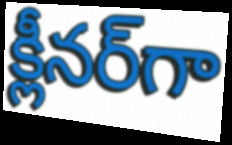
క్లీనర్‌గా